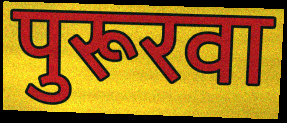
पुरूरवा